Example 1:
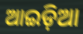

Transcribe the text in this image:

ଆଇଡ଼ିଆ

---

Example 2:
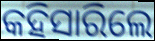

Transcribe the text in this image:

କହିସାରିଲେ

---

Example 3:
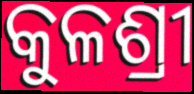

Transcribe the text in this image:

କୁଳଶ୍ରୀ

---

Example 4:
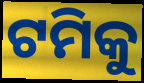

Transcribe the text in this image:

ଟମିକୁ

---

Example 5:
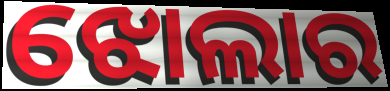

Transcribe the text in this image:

ଝୋଲାର